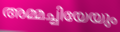
അമ്മച്ചിയേയും